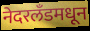
नेदरलँडमधून